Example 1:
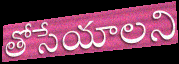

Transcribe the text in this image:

తోసేయాలని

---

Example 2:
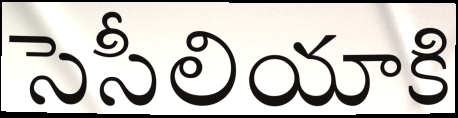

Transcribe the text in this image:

సెసీలియాకి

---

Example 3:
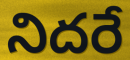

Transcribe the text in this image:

నిదరే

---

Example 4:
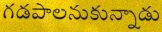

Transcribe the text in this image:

గడపాలనుకున్నాడు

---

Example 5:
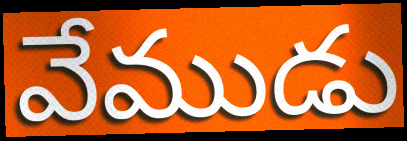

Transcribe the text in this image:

వేముడు